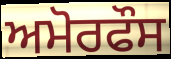
ਅਮੋਰਫੌਸ